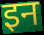
इन